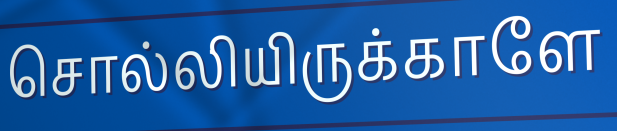
சொல்லியிருக்காளே